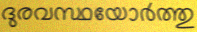
ദുരവസ്ഥയോർത്തു